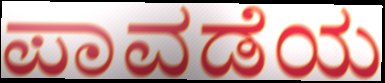
ಪಾವಡೆಯ